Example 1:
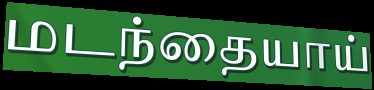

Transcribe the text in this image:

மடந்தையாய்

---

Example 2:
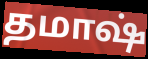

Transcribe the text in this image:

தமாஷ்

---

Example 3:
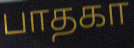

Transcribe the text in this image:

பாதகா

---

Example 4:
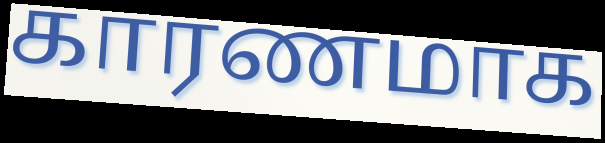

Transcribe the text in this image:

காரணமாக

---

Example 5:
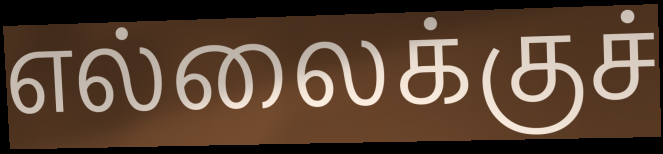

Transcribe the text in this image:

எல்லைக்குச்